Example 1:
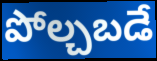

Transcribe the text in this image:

పోల్చబడే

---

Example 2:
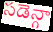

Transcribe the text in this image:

సడెన్గా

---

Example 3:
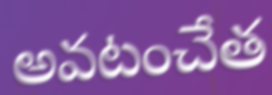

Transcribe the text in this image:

అవటంచేత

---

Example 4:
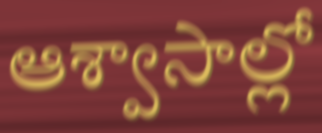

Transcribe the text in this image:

ఆశ్వాసాల్లో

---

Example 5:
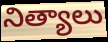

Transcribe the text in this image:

నిత్యాలు